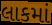
લાકમાં